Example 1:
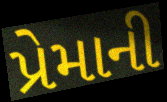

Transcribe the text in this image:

પ્રેમાની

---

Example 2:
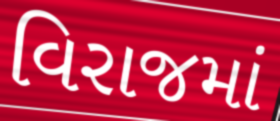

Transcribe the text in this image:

વિરાજમાં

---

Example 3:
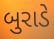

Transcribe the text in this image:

બુરાડે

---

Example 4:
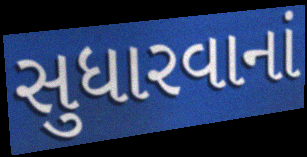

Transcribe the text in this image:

સુધારવાનાં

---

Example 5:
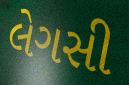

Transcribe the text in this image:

લેગસી